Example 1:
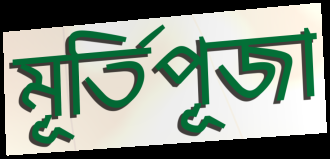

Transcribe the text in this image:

মূৰ্তিপূজা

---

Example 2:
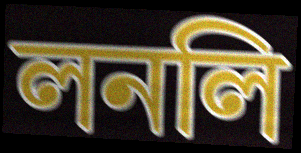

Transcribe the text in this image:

লনলি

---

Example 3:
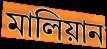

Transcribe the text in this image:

মালিয়ান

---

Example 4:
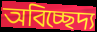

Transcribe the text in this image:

অবিচ্ছেদ্য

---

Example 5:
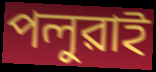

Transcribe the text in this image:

পলুৱাই